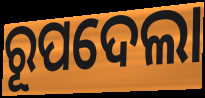
ରୂପଦେଲା